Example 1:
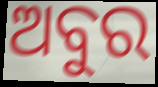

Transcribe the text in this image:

ଅବୁର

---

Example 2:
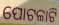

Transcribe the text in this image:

ପୋଟଳାଟି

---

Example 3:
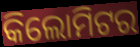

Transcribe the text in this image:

କିଲୋମିଟର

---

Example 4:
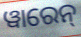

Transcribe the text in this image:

ୱାରେନ୍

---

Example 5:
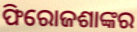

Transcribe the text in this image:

ଫିରୋଜଶାଙ୍କର